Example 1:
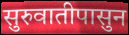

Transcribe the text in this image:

सुरुवातीपासुन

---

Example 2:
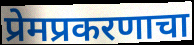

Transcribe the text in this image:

प्रेमप्रकरणाचा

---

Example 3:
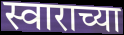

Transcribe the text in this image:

स्वाराच्या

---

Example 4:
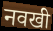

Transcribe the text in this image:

नवखी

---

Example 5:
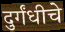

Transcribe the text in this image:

दुर्गंधीचे